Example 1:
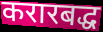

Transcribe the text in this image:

करारबद्ध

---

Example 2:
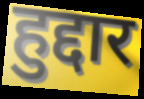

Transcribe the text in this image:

हुद्दार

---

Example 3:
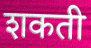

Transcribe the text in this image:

शकती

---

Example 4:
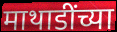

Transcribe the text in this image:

माथाडींच्या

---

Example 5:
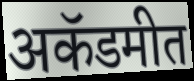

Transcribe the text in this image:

अकॅडमीत